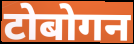
टोबोगन